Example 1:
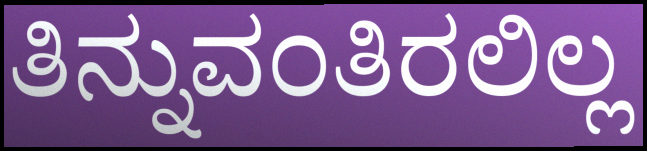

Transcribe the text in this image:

ತಿನ್ನುವಂತಿರಲಿಲ್ಲ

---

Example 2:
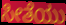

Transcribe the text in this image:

ಸೀತೆಯು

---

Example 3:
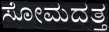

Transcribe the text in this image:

ಸೋಮದತ್ತ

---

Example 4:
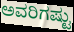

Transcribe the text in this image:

ಅವರಿಗಷ್ಟು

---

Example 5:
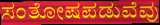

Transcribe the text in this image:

ಸಂತೋಷಪಡುವೆವು